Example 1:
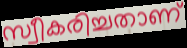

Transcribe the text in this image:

സ്വീകരിച്ചതാണ്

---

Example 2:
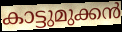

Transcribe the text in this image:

കാട്ടുമുക്കൻ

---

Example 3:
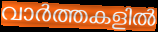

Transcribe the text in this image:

വാർത്തകളിൽ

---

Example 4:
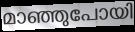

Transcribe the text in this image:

മാഞ്ഞുപോയി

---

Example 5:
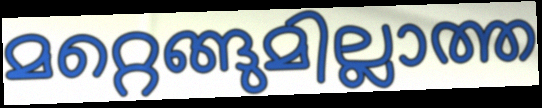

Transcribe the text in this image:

മറ്റെങ്ങുമില്ലാത്ത